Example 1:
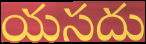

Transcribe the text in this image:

యసదు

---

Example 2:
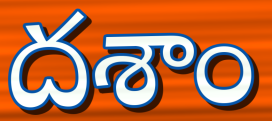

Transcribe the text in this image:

దశాం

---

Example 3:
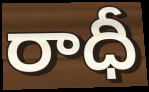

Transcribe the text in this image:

రాధీ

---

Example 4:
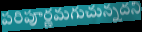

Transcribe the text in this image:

పరిపూర్ణమగుచున్నదని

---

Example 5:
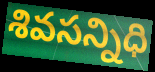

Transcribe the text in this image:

శివసన్నిధి